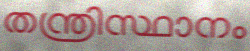
തന്ത്രിസ്ഥാനം